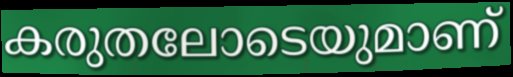
കരുതലോടെയുമാണ്